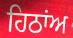
ਹਿਠਾਂਅ